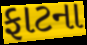
ફાટના